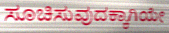
ಸೂಚಿಸುವುದಕ್ಕಾಗಿಯೇ